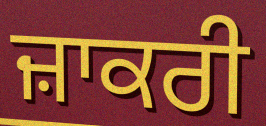
ਜ਼ਾਕਰੀ